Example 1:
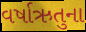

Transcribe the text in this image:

વર્ષાઋતુના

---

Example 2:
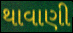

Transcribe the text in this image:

થાવાણી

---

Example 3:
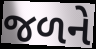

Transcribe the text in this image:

જળને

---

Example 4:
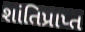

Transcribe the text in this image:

શાંતિપ્રાપ્ત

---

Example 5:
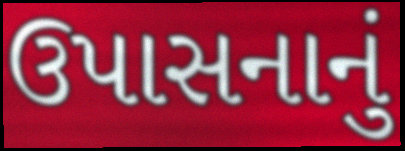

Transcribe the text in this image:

ઉપાસનાનું